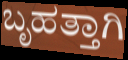
ಬೃಹತ್ತಾಗಿ